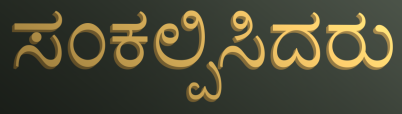
ಸಂಕಲ್ಪಿಸಿದರು